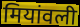
मियांवली